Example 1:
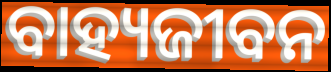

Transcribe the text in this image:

ବାହ୍ୟଜୀବନ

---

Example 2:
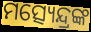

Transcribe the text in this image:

ମତ୍ସ୍ୟେନ୍ଦ୍ରଙ୍କ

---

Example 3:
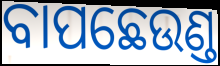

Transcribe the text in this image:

ବାପଛେଉଣ୍ଡ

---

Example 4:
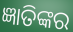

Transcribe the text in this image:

ଜ୍ଞାତିଙ୍କର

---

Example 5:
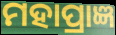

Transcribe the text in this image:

ମହାପ୍ରାଜ୍ଞ